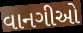
વાનગીઓ